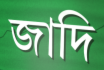
জাদি